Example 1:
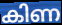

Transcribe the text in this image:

കിണ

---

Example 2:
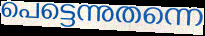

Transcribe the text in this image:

പെട്ടെന്നുതന്നെ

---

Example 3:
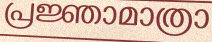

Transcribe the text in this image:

പ്രജ്ഞാമാത്രാ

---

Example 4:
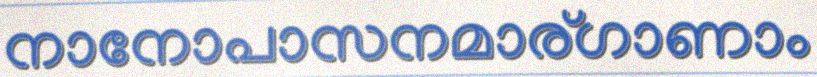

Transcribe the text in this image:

നാനോപാസനമാര്ഗാണാം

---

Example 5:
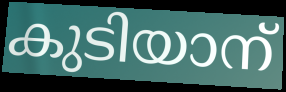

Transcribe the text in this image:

കുടിയാന്